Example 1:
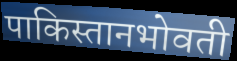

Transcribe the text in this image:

पाकिस्तानभोवती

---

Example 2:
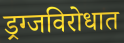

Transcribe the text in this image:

ड्रग्जविरोधात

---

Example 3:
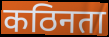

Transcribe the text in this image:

कठिनता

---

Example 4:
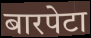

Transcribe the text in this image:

बारपेटा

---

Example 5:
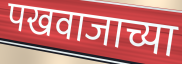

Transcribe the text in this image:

पखवाजाच्या